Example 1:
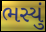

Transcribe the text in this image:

ભસ્યું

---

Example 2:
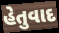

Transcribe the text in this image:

હેતુવાદ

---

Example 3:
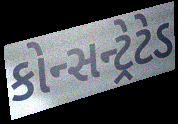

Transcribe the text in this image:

કોન્સન્ટ્રેટેડ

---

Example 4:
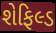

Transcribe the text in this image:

શેફિલ્ડ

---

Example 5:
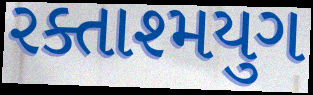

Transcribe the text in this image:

રક્તાશ્મયુગ